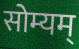
सोम्यम्